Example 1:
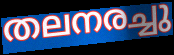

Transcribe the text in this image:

തലനരച്ചു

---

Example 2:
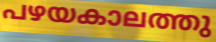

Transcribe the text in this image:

പഴയകാലത്തു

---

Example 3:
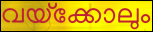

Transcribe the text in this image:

വയ്‌ക്കോലും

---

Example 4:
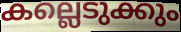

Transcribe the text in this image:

കല്ലെടുക്കും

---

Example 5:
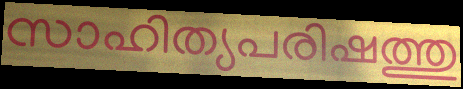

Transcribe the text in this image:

സാഹിത്യപരിഷത്തു